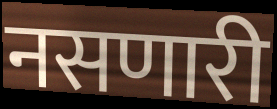
नसणारी